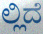
ಲ್ಲಿದೆ